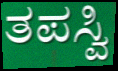
ತಪಸ್ವಿ